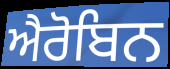
ਐਰੋਬਿਨ